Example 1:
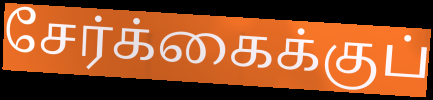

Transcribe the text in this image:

சேர்க்கைக்குப்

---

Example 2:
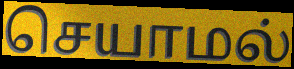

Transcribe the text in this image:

செயாமல்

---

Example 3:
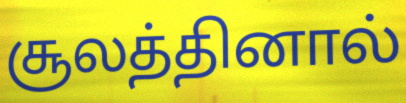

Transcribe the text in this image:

சூலத்தினால்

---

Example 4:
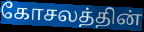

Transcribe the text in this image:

கோசலத்தின்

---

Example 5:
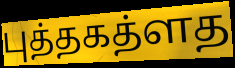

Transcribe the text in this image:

புத்தகத்ளத